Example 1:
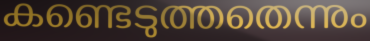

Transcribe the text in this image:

കണ്ടെടുത്തതെന്നും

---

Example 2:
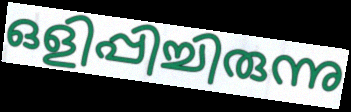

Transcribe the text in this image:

ഒളിപ്പിച്ചിരുന്നു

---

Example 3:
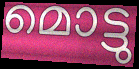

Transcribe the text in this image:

മൊട്ടു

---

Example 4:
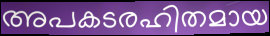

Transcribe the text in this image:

അപകടരഹിതമായ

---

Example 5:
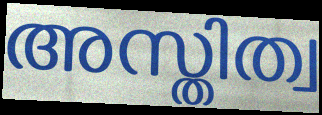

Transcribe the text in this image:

അസ്തിത്വ